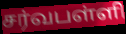
சர்வபள்ளி